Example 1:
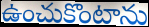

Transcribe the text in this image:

ఉంచుకొంటాను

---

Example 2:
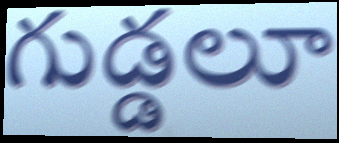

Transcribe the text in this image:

గుడ్డలూ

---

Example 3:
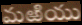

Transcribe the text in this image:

మఱియు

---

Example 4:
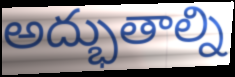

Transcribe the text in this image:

అద్భుతాల్ని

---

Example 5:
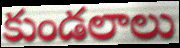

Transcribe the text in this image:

కుండలాలు